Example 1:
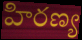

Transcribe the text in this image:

హిరణ్య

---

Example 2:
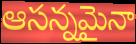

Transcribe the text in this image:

ఆసన్నమైనా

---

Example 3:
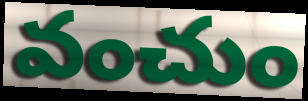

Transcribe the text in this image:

వంచుం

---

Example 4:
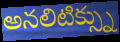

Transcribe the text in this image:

అనలిటిక్స్ను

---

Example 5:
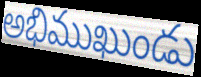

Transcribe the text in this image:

అభిముఖుండు